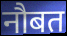
नौबत